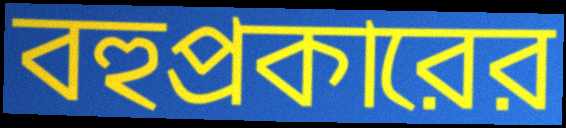
বহুপ্রকারের